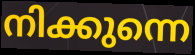
നിക്കുന്നെ